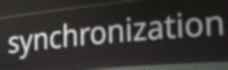
synchronization